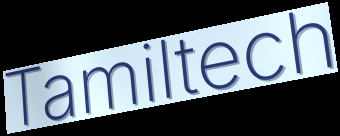
Tamiltech